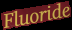
Fluoride